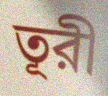
তূরী